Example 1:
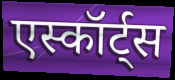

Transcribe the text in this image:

एस्कॉर्ट्स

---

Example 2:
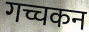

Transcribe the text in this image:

गच्चकन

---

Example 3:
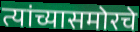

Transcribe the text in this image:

त्यांच्यासमोरचे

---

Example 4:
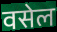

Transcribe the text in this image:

वसेल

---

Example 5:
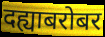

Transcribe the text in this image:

दह्याबरोबर